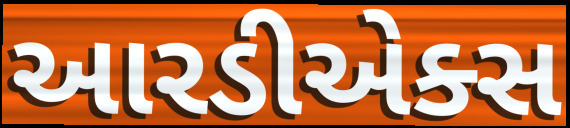
આરડીએક્સ